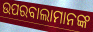
ଉପରବାଲାମାନଙ୍କ